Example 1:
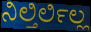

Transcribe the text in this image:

ನಿಲ್ತಿರ್ಲಿಲ್ಲ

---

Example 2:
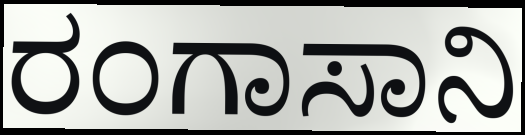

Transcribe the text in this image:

ರಂಗಾಸಾನಿ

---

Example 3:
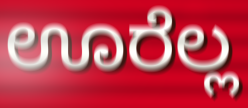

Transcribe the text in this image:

ಊರೆಲ್ಲ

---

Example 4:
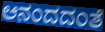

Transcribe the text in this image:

ಆನಂದದಂತೆ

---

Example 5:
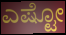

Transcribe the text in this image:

ಎಷ್ಟೋ